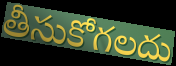
తీసుకోగలదు